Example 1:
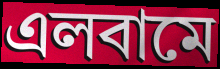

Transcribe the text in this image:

এলবামে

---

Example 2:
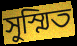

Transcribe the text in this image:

সুস্মিত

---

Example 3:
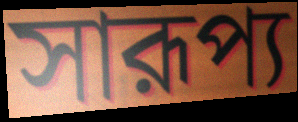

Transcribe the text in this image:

সারূপ্য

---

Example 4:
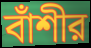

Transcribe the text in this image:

বাঁশীর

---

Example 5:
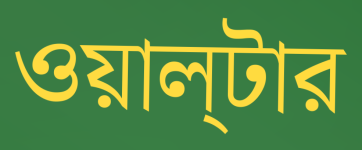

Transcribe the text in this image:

ওয়াল্‌টার